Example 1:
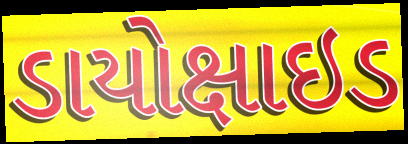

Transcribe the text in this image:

ડાયોક્ષાઇડ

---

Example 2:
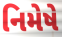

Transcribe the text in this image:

નિમેષે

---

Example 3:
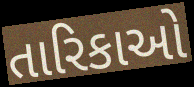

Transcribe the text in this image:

તારિકાઓ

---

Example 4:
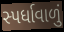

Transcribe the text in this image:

સ્પર્ધાવાળું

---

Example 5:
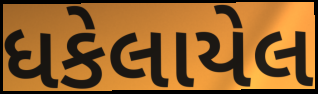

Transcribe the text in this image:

ધકેલાયેલ